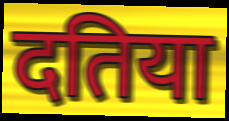
दतिया